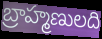
బ్రాహ్మణులది